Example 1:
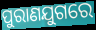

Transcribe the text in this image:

ପୁରାଣଯୁଗରେ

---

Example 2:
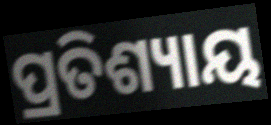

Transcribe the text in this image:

ପ୍ରତିଶ୍ୟାୟ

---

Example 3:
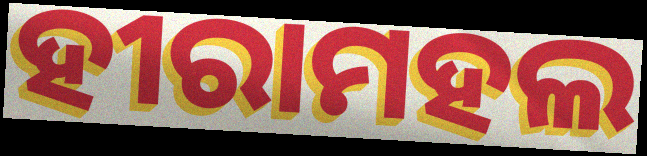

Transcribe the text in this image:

ହୀରାମହଲ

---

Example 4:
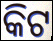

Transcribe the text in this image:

କିଟ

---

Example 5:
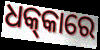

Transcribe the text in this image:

ଧକ୍‍କାରେ